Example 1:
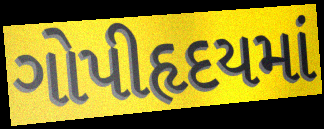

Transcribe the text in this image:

ગોપીહૃદયમાં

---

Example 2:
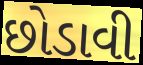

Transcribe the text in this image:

છોડાવી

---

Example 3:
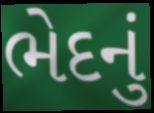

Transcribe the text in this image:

ભેદનું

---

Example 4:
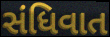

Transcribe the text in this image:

સંધિવાત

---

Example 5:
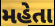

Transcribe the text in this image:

મહેતા